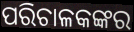
ପରିଚାଳକଙ୍କର